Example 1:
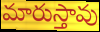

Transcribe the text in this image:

మారుస్తావు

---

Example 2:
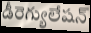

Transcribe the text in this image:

డీరెగ్యులేషన్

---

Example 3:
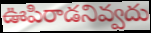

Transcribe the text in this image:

ఊపిరాడనివ్వదు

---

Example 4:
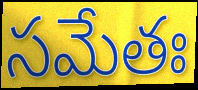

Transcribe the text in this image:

సమేతః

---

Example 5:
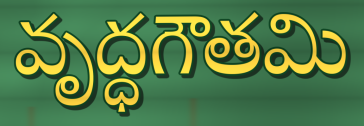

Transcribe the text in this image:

వృద్ధగౌతమి